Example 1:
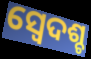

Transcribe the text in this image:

ସ୍ବେଦଶ୍ଚ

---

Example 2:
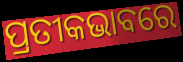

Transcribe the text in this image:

ପ୍ରତୀକଭାବରେ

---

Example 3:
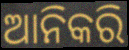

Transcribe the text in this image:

ଆନିକରି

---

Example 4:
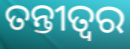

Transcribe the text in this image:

ତନ୍ତୀତ୍ୱର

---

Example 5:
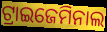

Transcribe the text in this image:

ଟ୍ରାଇଜେମିନାଲ